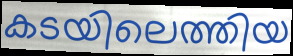
കടയിലെത്തിയ